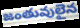
జంతువులైన